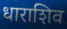
धाराशिव